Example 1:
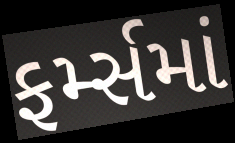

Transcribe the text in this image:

ફર્મ્સમાં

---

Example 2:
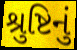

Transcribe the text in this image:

શ્રુષ્ટિનું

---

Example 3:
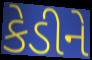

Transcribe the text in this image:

કેડીને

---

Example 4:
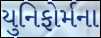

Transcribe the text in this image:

યુનિફોર્મના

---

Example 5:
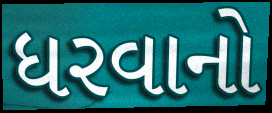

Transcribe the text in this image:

ધરવાનો